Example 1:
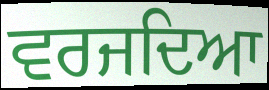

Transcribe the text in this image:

ਵਰਜਦਿਆ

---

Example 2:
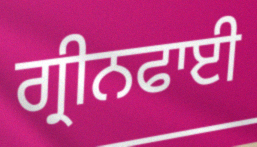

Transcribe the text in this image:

ਗ੍ਰੀਨਫਾਈ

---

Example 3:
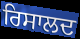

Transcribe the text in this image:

ਰਿਸਾਲਦ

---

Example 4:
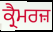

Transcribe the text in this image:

ਕ੍ਰੈਮਰਜ਼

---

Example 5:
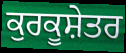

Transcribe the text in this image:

ਕੁਰਕੂਸ਼ੇਤਰ